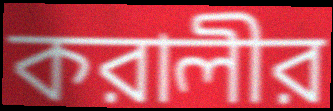
করালীর